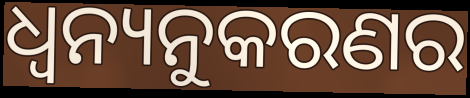
ଧ୍ବନ୍ୟନୁକରଣର